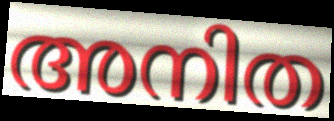
അനിത